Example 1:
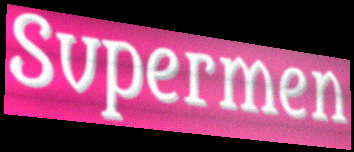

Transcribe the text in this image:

Supermen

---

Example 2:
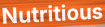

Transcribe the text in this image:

Nutritious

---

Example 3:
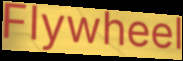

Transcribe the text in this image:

Flywheel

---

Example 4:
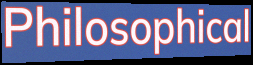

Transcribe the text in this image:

Philosophical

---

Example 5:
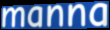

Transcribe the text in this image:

manna